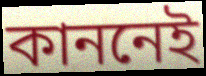
কাননেই